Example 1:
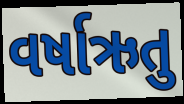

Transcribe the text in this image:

વર્ષાઋતુ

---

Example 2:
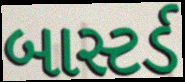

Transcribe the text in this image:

બાસ્ટર્ડ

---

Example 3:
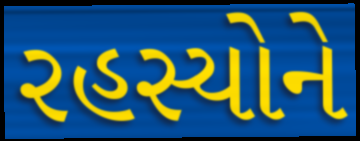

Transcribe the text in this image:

રહસ્યોને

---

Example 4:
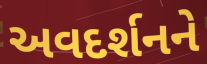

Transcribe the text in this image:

અવદર્શનને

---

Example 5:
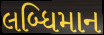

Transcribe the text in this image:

લબ્ધિમાન